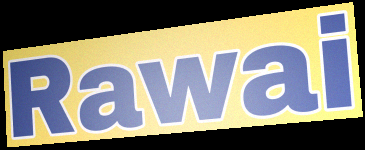
Rawai